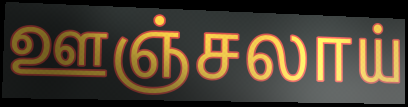
ஊஞ்சலாய்